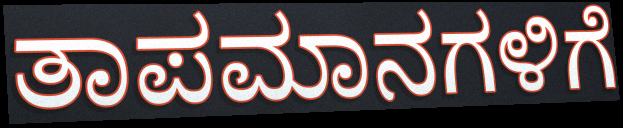
ತಾಪಮಾನಗಳಿಗೆ